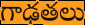
గాఢతలు